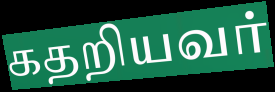
கதறியவர்